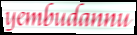
yembudannu